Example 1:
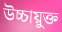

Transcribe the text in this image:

উচ্চায়ুক্ত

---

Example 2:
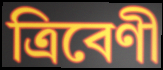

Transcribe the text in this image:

ত্ৰিবেণী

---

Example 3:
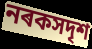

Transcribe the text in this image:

নৰকসদৃশ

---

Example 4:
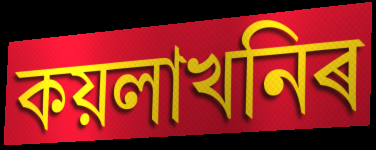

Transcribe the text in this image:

কয়লাখনিৰ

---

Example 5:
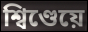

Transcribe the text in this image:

শ্বিণ্ডেয়ে